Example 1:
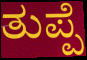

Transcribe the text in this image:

ತುಪ್ಪೆ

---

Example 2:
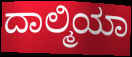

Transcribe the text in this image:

ದಾಲ್ಮಿಯಾ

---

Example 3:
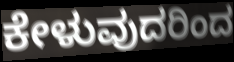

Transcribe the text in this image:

ಕೇಳುವುದರಿಂದ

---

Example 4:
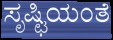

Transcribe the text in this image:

ಸೃಷ್ಟಿಯಂತೆ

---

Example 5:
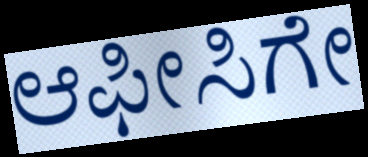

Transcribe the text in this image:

ಆಫೀಸಿಗೇ